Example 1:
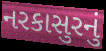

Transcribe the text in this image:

નરકાસુરનું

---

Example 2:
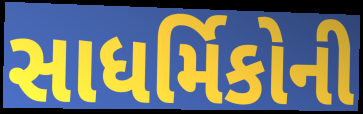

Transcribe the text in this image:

સાધર્મિકોની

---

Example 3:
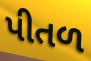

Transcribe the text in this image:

પીતળ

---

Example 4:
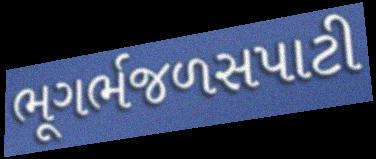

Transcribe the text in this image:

ભૂગર્ભજળસપાટી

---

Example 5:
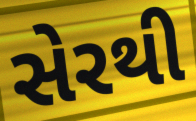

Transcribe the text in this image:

સેરથી